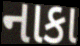
નાકા